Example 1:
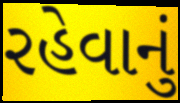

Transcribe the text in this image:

રહેવાનું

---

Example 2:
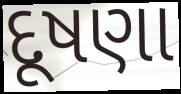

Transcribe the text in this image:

દૂષણા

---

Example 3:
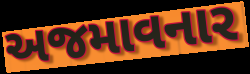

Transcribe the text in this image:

અજમાવનાર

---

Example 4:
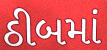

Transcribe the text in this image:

ઠીબમાં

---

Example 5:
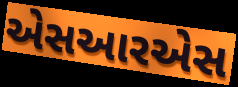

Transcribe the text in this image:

એસઆરએસ